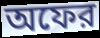
অফের